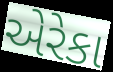
એરેકા